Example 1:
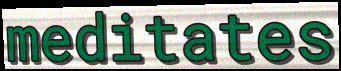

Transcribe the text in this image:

meditates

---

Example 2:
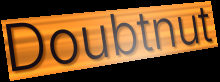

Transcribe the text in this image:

Doubtnut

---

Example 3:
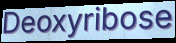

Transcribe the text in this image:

Deoxyribose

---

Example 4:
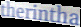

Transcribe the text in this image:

therintha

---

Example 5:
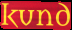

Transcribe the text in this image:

kund